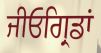
ਜੀਓਗ੍ਰਿਡਾਂ